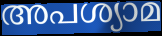
അപശ്യാമ